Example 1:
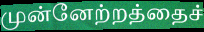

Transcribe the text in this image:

முன்னேற்றத்தைச்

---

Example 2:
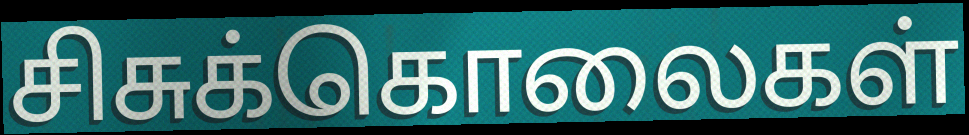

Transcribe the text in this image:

சிசுக்கொலைகள்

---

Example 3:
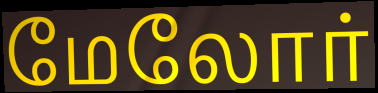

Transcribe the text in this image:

மேலோர்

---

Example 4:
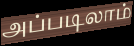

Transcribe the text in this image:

அப்படிலாம்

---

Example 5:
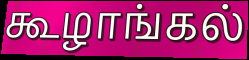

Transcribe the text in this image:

கூழாங்கல்